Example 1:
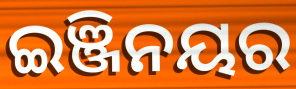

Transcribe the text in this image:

ଇଞ୍ଜିନୟର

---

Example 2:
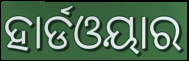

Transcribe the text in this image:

ହାର୍ଡଓୟାର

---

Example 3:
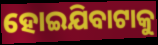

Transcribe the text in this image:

ହୋଇଯିବାଟାକୁ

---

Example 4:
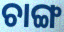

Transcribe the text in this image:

ଚାଙ୍ଗ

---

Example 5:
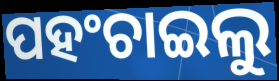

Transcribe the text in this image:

ପହଂଚାଇଲୁ